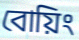
বোয়িং